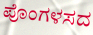
ಪೊಂಗಳಸದ